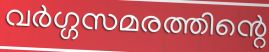
വർഗ്ഗസമരത്തിന്റെ